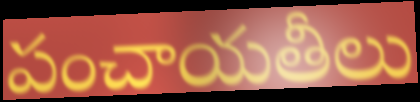
పంచాయతీలు